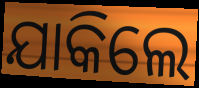
ଯାକିଲେ